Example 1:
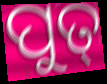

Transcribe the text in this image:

ପୁତ୍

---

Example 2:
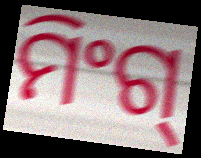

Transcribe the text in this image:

ମିଂଗ୍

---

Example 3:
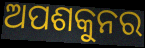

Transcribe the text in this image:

ଅପଶକୁନର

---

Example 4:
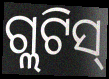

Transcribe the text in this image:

ଗ୍ଲଟିସ୍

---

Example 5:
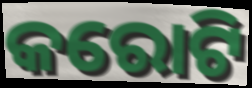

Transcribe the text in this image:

କରୋଟି